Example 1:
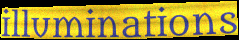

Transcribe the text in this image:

illuminations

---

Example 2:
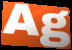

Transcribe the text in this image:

Ag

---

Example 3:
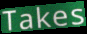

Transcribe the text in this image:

Takes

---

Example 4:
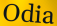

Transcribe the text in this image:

Odia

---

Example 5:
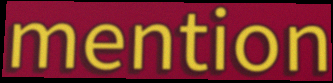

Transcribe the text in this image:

mention